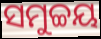
ସମୁଚ୍ଚୟ